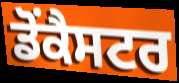
ਡੋਂਕੈਸਟਰ